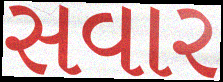
સવાર